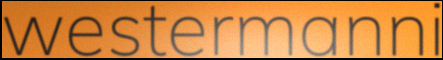
westermanni